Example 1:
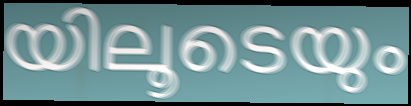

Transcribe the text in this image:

യിലൂടെയും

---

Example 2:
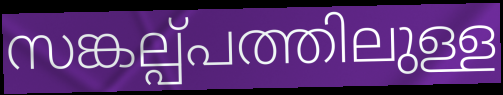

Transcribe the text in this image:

സങ്കല്പ്പത്തിലുള്ള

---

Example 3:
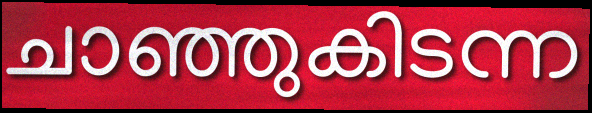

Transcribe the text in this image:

ചാഞ്ഞുകിടന്ന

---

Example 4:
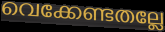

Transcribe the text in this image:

വെക്കേണ്ടതല്ലേ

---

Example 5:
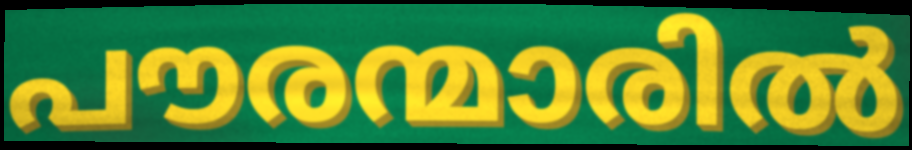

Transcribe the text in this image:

പൗരന്മാരിൽ